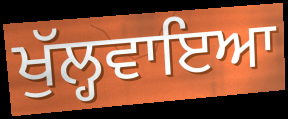
ਖੁੱਲ੍ਹਵਾਇਆ